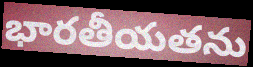
భారతీయతను